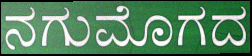
ನಗುಮೊಗದ